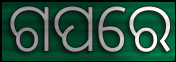
ଗପରେ